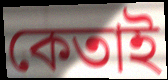
কেতাই